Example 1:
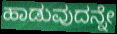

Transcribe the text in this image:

ಹಾಡುವುದನ್ನೇ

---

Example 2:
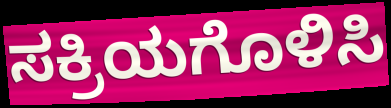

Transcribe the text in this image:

ಸಕ್ರಿಯಗೊಳಿಸಿ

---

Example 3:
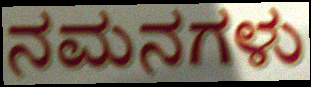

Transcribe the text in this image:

ನಮನಗಳು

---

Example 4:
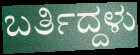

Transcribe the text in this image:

ಬರ್ತಿದ್ದಳು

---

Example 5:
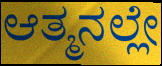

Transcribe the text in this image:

ಆತ್ಮನಲ್ಲೇ